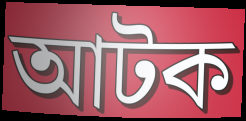
আটক